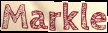
Markle